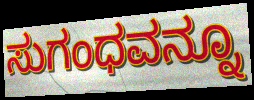
ಸುಗಂಧವನ್ನೂ